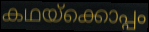
കഥയ്ക്കൊപ്പം